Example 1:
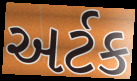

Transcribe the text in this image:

અર્ટક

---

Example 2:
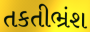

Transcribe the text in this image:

તકતીભ્રંશ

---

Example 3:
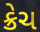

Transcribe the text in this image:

ક્રેચ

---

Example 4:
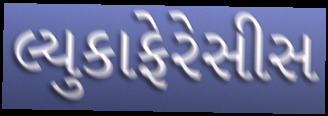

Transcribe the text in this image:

લ્યુકાફેરેસીસ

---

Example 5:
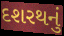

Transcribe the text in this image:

દશરથનું